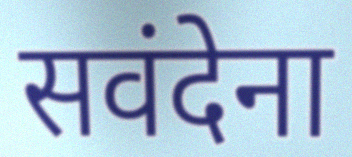
सवंदेना